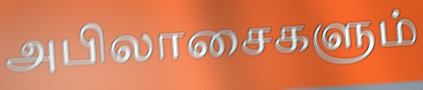
அபிலாசைகளும்